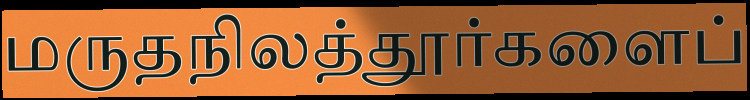
மருதநிலத்தூர்களைப்